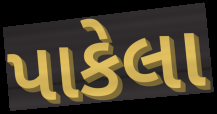
પાકેલા